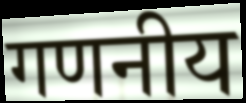
गणनीय